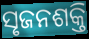
ସୃଜନଶକ୍ତି